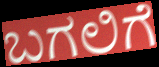
ಬಗಲಿಗೆ